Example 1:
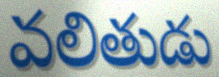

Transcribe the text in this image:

వలితుడు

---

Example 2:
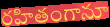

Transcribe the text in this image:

రహితంగానూ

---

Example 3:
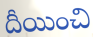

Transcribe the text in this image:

దీయించి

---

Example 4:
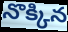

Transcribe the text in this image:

నొక్కిన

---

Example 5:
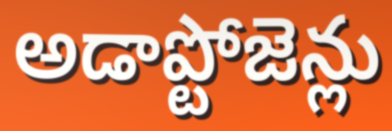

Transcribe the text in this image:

అడాప్టోజెన్లు